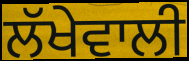
ਲੱਖੇਵਾਲੀ